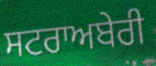
ਸਟਰਾਅਬੇਰੀ